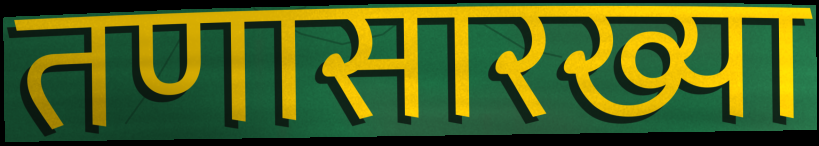
तणासारख्या